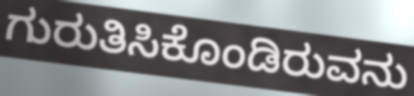
ಗುರುತಿಸಿಕೊಂಡಿರುವನು